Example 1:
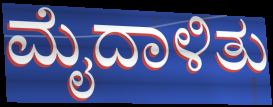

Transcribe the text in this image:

ಮೈದಾಳಿತು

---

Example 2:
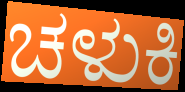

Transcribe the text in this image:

ಚಳುಕಿ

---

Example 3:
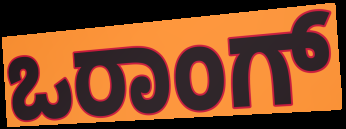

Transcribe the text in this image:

ಒರಾಂಗ್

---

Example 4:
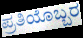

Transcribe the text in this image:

ಪ್ರತಿಯೊಬ್ಬರ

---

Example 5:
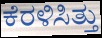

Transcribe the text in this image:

ಕೆರಳಿಸಿತ್ತು